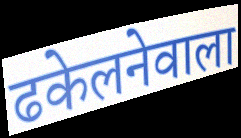
ढकेलनेवाला